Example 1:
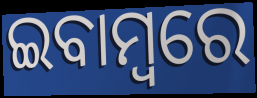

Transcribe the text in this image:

ଇବାମ୍ବରେ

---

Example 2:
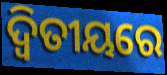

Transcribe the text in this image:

ଦ୍ୱିତୀୟରେ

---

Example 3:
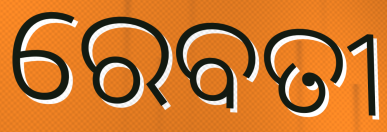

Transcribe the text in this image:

ରେବତୀ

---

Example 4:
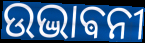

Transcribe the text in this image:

ଉଦ୍ଭାଵନୀ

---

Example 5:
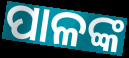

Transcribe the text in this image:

ପାଳଙ୍କ